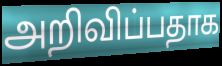
அறிவிப்பதாக